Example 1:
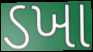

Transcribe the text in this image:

ડખા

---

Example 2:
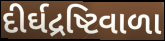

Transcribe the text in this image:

દીર્ઘદ્રષ્ટિવાળા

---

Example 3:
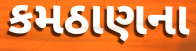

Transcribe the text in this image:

કમઠાણના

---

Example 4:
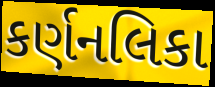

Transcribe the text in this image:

કર્ણનલિકા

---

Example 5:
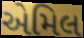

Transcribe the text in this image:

એમિલ